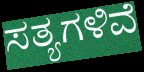
ಸತ್ಯಗಳಿವೆ